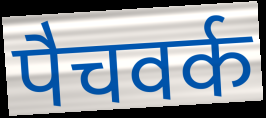
पैचवर्क